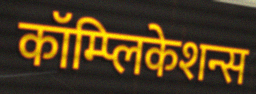
कॉम्प्लिकेशन्स